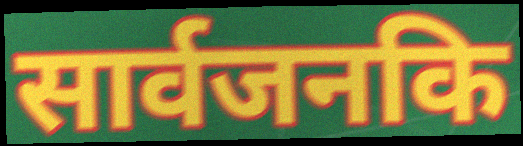
सार्वजनकि